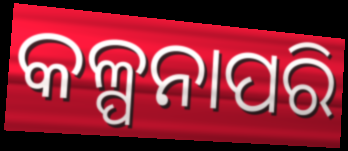
କଳ୍ପନାପରି